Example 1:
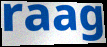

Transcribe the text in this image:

raag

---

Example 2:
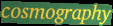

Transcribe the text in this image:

cosmography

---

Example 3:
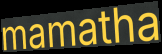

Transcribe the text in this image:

mamatha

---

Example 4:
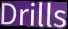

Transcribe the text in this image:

Drills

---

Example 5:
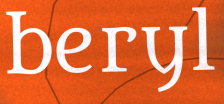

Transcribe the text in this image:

beryl